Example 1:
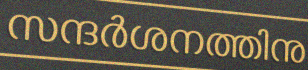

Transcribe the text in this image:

സന്ദർശനത്തിനു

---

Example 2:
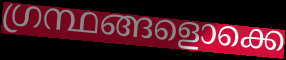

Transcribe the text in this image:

ഗ്രന്ഥങ്ങളൊക്കെ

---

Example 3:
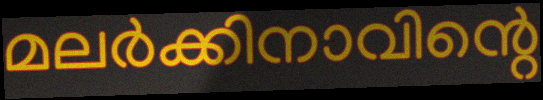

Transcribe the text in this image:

മലർക്കിനാവിന്റെ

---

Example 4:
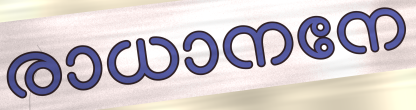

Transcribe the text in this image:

രാധാനനേ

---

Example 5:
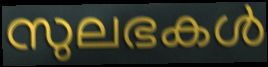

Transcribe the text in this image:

സുലഭകൾ